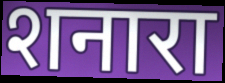
शनारा